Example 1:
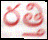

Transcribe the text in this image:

రత్తి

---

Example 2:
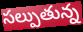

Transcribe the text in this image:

సల్పుతున్న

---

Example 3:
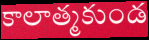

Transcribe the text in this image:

కాలాత్మకుండ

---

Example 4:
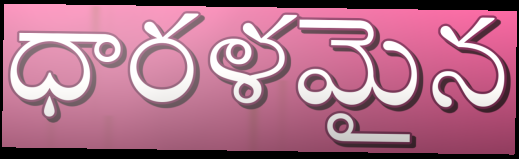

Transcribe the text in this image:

ధారళమైన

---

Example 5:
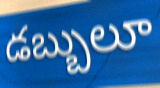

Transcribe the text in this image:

డబ్బులూ